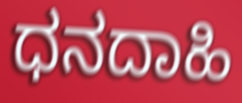
ಧನದಾಹಿ